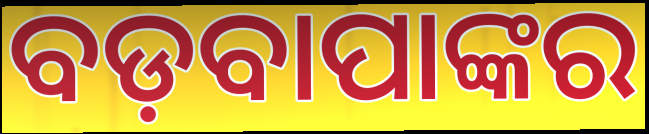
ବଡ଼ବାପାଙ୍କର